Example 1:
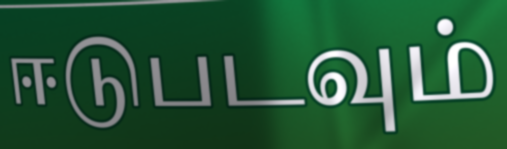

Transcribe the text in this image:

ஈடுபடவும்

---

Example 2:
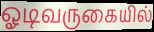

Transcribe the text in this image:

ஓடிவருகையில்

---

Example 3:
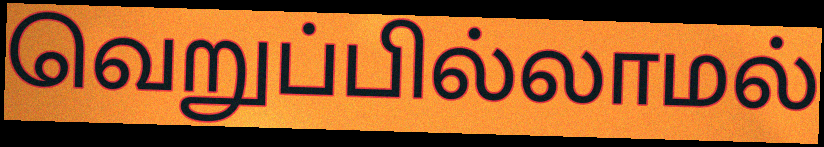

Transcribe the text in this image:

வெறுப்பில்லாமல்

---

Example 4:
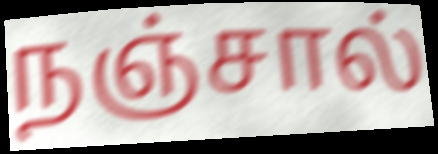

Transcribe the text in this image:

நஞ்சால்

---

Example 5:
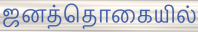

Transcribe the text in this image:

ஜனத்தொகையில்